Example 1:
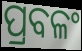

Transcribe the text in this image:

ପ୍ରବଳଂ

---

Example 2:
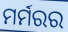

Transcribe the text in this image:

ମର୍ମରର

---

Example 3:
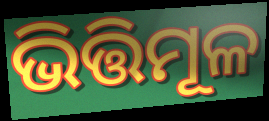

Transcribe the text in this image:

ଭିତ୍ତିମୂଳ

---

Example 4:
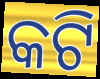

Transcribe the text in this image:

କଟି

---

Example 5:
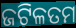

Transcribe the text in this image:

ଜଟିଳତମ